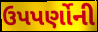
ઉપપર્ણોની